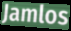
Jamlos